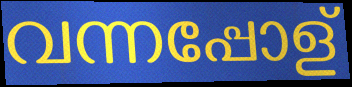
വന്നപ്പോള്